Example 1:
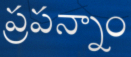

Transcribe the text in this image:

ప్రపన్నాం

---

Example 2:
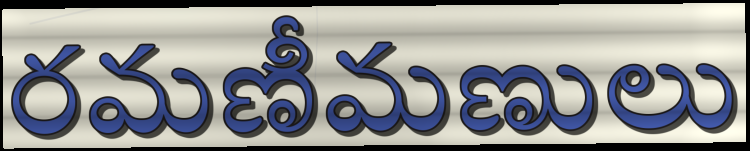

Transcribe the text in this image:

రమణీమణులు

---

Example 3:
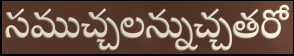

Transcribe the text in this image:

సముచ్చలన్నుచ్చతరో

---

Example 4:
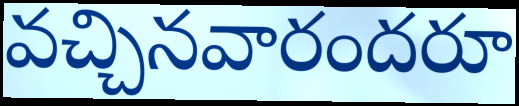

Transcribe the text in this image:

వచ్చినవారందరూ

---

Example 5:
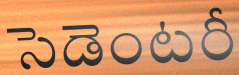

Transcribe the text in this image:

సెడెంటరీ